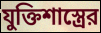
যুক্তিশাস্ত্রের